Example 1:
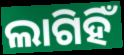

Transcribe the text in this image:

ଲାଗିହିଁ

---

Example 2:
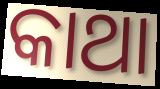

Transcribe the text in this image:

କାଥା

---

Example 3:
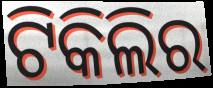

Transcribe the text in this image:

ଟିକିଲିର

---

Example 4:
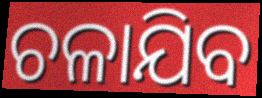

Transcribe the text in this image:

ଚଳାଯିବ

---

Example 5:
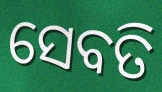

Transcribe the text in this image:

ସେବତି